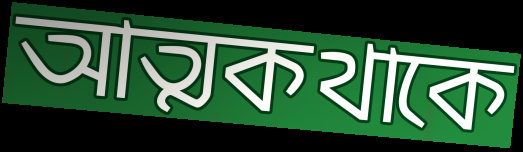
আত্মকথাকে